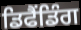
ਡਿਫੈਂਡਿੰਗ